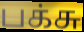
பக்சு